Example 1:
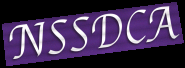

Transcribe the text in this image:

NSSDCA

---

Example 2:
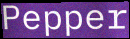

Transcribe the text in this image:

Pepper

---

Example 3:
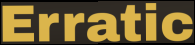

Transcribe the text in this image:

Erratic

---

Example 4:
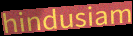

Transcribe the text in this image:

hindusiam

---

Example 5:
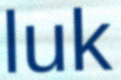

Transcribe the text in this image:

luk